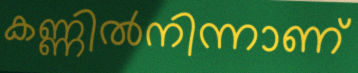
കണ്ണിൽനിന്നാണ്